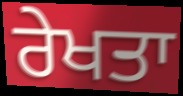
ਰੇਖਤਾ